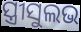
ସ୍ତ୍ରୀସୁଲଭ